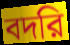
বদরি